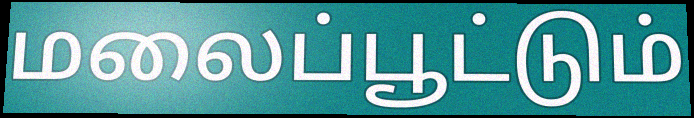
மலைப்பூட்டும்